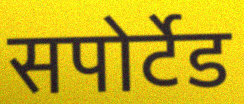
सपोर्टेड